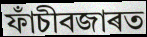
ফাঁচীবজাৰত